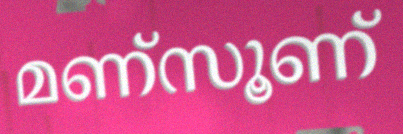
മണ്സൂണ്